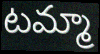
టమ్మా